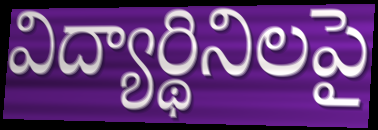
విద్యార్థినిలపై